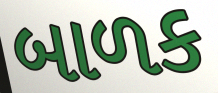
બાળક